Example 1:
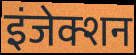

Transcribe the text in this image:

इंजेक्शन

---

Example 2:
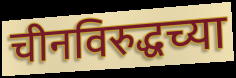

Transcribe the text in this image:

चीनविरुद्धच्या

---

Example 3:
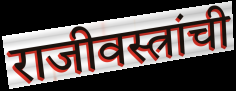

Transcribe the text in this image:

राजीवस्त्रांची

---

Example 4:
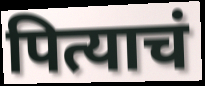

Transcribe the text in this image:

पित्याचं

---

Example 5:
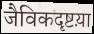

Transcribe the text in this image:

जैविकदृष्टय़ा